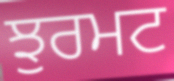
ਝੁਰਮਟ